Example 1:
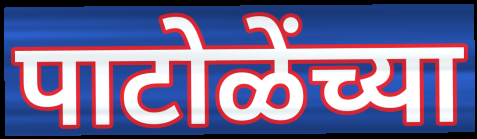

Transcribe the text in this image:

पाटोळेंच्या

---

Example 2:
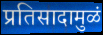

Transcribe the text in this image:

प्रतिसादामुळं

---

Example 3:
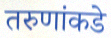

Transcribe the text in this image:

तरुणांकडे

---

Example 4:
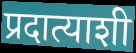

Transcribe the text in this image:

प्रदात्याशी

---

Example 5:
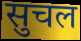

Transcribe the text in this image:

सुचल